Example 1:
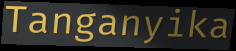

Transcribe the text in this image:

Tanganyika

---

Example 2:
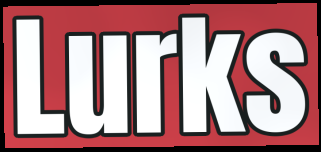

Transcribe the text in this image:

Lurks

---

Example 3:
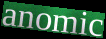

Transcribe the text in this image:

anomic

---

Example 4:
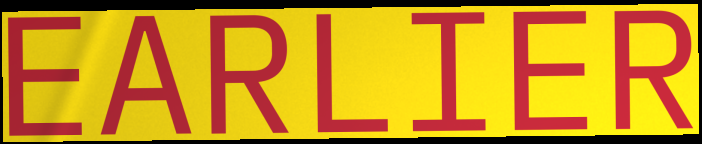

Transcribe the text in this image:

EARLIER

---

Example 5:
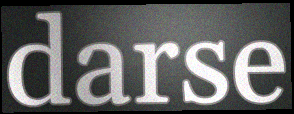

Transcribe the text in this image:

darse